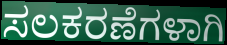
ಸಲಕರಣೆಗಳಾಗಿ